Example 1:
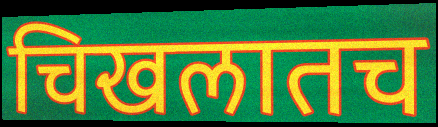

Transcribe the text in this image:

चिखलातच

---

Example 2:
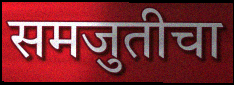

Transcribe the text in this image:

समजुतीचा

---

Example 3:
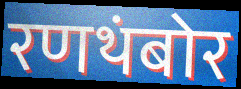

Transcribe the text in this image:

रणथंबोर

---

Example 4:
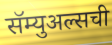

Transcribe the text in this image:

सॅम्युअल्सची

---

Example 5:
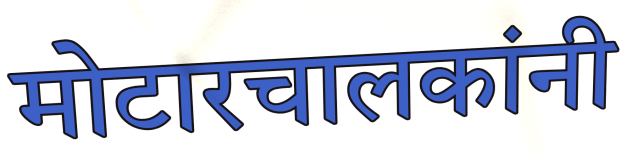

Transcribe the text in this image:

मोटारचालकांनी